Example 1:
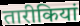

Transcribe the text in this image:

तारीकियां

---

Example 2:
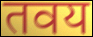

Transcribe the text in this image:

तवय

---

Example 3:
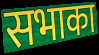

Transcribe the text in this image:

सभाका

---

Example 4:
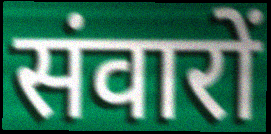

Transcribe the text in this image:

संवारों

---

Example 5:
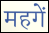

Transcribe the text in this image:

महगें